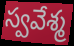
స్వవేశ్మ